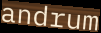
andrum